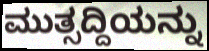
ಮುತ್ಸದ್ದಿಯನ್ನು